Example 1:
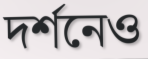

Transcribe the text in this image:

দর্শনেও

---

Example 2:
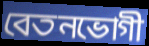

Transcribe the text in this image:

বেতনভোগী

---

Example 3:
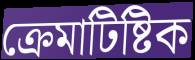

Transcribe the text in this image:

ক্রেমাটিষ্টিক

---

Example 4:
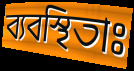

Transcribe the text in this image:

ব্যবস্থিতাঃ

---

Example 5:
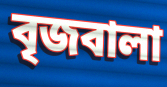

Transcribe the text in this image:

বৃজবালা